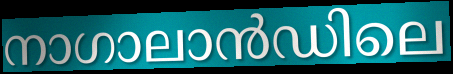
നാഗാലാൻഡിലെ